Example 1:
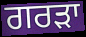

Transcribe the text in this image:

ਗਰੜਾ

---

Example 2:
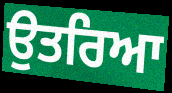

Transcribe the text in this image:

ਉਤਰਿਆ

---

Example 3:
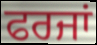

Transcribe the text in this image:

ਫਰਜਾਂ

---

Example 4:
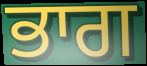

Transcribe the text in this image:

ਭਾਗ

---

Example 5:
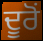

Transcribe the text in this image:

ਦੂਰੋਂ